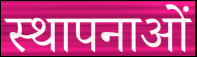
स्थापनाओं